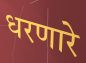
धरणारे